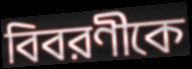
বিবরণীকে